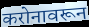
करोनावरून